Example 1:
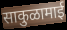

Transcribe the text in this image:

साकुळामाई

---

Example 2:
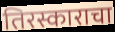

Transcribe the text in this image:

तिरस्काराचा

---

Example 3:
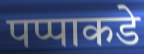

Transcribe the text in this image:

पप्पाकडे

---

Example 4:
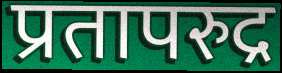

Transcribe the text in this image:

प्रतापरुद्र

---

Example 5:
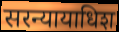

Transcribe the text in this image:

सरन्यायाधिश